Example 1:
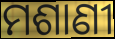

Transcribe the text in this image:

ମଶାଣୀ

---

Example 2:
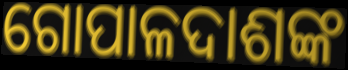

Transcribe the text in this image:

ଗୋପାଳଦାଶଙ୍କ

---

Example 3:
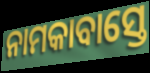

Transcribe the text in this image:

ନାମକାବାସ୍ତେ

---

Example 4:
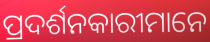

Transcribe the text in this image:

ପ୍ରଦର୍ଶନକାରୀମାନେ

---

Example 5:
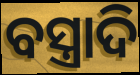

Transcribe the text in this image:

ବସ୍ତ୍ରାଦି